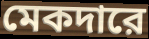
মেকদারে